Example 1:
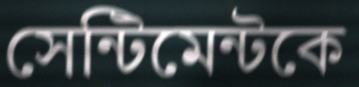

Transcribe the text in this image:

সেন্টিমেন্টকে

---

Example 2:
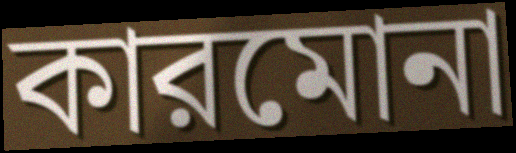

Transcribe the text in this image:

কারমোনা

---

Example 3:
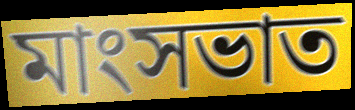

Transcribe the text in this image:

মাংসভাত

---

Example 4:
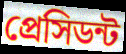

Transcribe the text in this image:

প্রেসিডন্ট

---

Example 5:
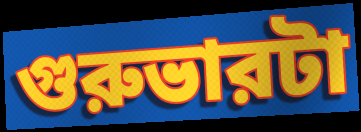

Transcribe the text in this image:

গুরুভারটা